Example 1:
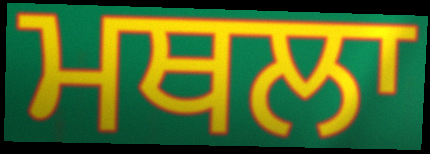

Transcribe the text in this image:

ਮਥਲਾ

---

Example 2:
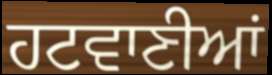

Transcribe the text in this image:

ਹਟਵਾਣੀਆਂ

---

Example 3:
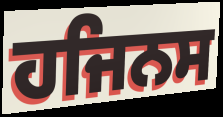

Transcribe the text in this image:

ਹਜਿਨਸ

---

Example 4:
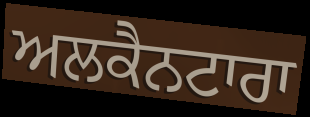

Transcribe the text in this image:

ਅਲਕੈਨਟਾਰਾ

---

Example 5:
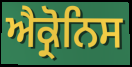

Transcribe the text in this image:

ਐਕ੍ਰੋਨਿਸ